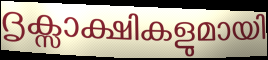
ദൃക്സാക്ഷികളുമായി